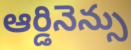
ఆర్డినెన్సు